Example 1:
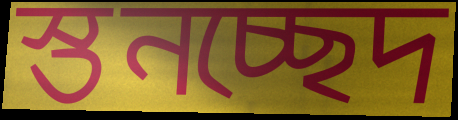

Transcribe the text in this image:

স্তনচ্ছেদ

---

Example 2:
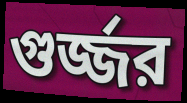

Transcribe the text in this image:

গুর্জ্জর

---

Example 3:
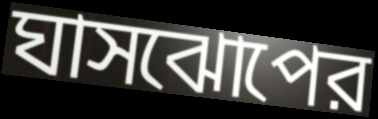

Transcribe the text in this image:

ঘাসঝোপের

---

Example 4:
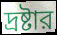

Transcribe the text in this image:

দ্রষ্টার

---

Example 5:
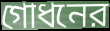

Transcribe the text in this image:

গোধনের